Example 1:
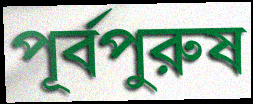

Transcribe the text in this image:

পূর্বপুরুষ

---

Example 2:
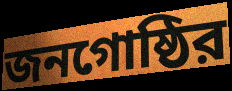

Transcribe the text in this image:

জনগোষ্ঠির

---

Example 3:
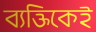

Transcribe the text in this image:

ব্যক্তিকেই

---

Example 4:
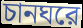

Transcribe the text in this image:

চানঘরে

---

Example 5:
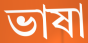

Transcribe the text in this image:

ভাষা